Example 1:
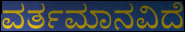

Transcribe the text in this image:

ವರ್ತಮಾನವಿದೆ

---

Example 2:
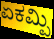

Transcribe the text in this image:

ಏಕಮ್ಪಿ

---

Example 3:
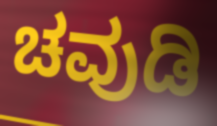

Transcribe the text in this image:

ಚವುಡಿ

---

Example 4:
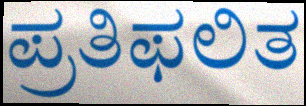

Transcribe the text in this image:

ಪ್ರತಿಫಲಿತ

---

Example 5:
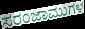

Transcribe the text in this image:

ಸರಂಜಾಮುಗಳ